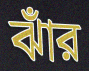
ঝাঁর